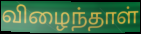
விழைந்தாள்